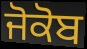
ਜੋਕੋਬ